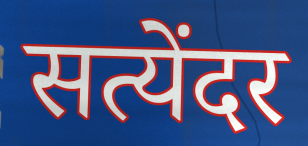
सत्येंदर